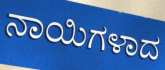
ನಾಯಿಗಳಾದ